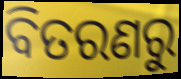
ବିତରଣରୁ